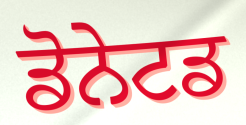
ਡੋਨੇਟਡ